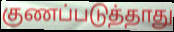
குணப்படுத்தாது